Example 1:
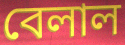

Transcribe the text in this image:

বেলাল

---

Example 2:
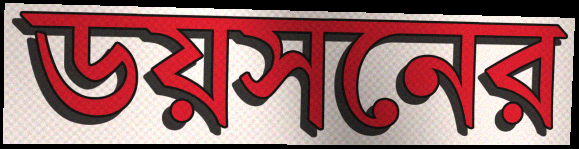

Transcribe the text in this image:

ডয়সনের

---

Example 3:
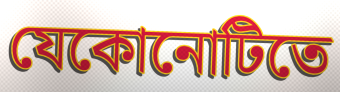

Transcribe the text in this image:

যেকোনোটিতে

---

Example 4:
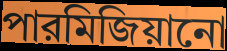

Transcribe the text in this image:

পারমিজিয়ানো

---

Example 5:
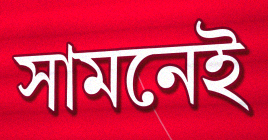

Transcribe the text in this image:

সামনেই